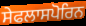
ਸੇਫਲਾਸਪੋਰਿਨ